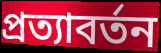
প্রত্যাবর্তন